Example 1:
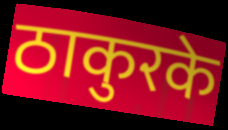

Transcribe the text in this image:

ठाकुरके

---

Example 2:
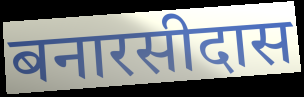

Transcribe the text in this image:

बनारसीदास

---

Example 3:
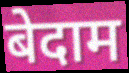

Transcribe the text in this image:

बेदाम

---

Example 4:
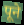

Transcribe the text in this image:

पूने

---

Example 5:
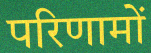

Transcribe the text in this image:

परिणामों